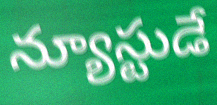
న్యూస్టుడే